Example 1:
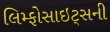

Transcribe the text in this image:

લિમ્ફોસાઇટ્સની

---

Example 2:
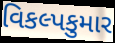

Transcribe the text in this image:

વિકલ્પકુમાર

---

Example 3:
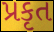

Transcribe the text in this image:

પ્રકૃત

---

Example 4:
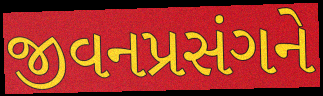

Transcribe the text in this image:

જીવનપ્રસંગને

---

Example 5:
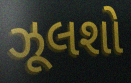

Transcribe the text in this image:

ઝૂલશો